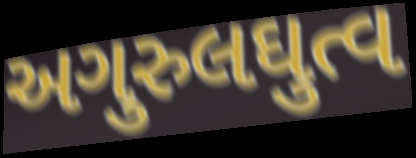
અગુરુલઘુત્વ